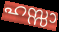
ഹസ്സാ